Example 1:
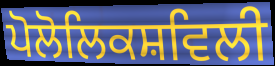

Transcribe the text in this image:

ਪੋਲੋਲਿਕਸ਼ਵਿਲੀ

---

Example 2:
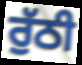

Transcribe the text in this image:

ਰੁੱਠੀ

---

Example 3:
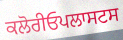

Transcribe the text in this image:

ਕਲੋਰੀਓਪਲਾਸਟਸ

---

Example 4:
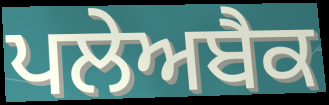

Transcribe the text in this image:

ਪਲੇਅਬੈਕ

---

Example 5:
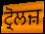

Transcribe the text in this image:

ਟ੍ਰੋਲਜ਼